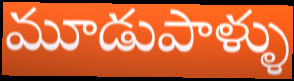
మూడుపాళ్ళు